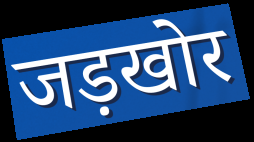
जड़खोर